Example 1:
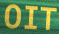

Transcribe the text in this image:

OIT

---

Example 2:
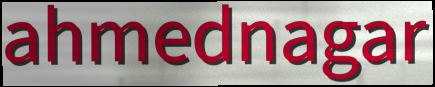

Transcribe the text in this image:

ahmednagar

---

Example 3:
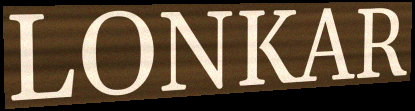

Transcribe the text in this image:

LONKAR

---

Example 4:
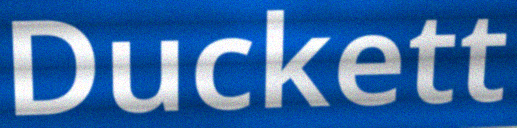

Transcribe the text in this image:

Duckett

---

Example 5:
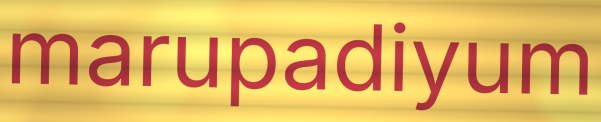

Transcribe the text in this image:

marupadiyum